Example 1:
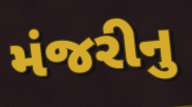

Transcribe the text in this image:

મંજરીનુ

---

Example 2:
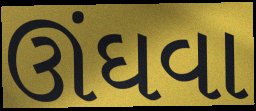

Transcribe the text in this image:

ઊંઘવા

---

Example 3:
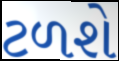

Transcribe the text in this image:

ટળશે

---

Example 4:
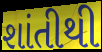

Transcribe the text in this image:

શાંતીથી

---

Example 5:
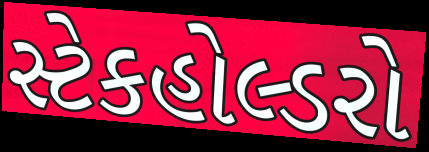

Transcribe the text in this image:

સ્ટેકહોલ્ડરો